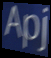
Apj